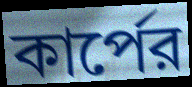
কার্পের